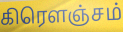
கிரௌஞ்சம்